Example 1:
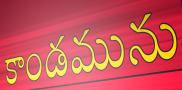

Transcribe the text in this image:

కాండమును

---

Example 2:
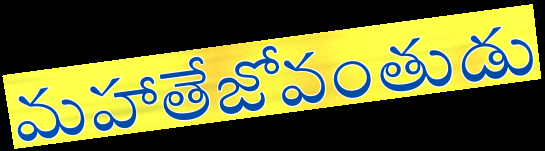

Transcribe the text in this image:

మహాతేజోవంతుడు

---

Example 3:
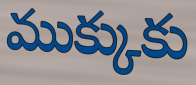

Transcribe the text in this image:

ముక్కుకు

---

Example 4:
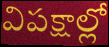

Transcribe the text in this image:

విపక్షాల్లో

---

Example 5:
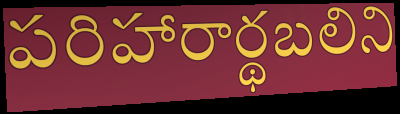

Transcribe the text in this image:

పరిహారార్థబలిని